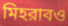
মিহরাবও